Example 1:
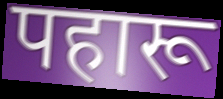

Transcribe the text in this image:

पहारू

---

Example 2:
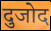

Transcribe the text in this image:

दुजोद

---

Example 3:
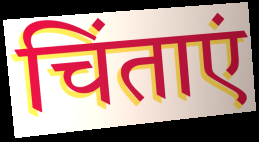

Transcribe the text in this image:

चिंताएं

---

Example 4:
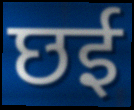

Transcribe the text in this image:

छई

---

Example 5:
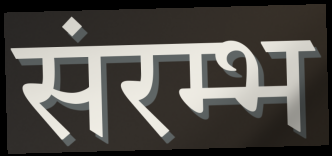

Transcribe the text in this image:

संरम्भ